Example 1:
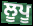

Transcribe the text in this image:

ਲੂਪੂ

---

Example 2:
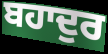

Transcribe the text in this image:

ਬਹਾਦੁਰ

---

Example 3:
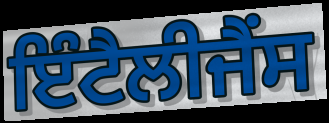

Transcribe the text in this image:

ਇੰਟੈਲੀਜੈਂਸ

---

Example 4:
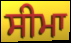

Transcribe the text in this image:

ਸੀਮਾ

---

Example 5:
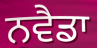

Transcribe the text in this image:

ਨਵੈਡਾ